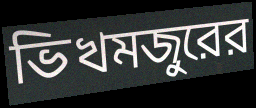
ভিখমজুরের